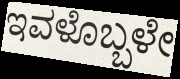
ಇವಳೊಬ್ಬಳೇ